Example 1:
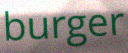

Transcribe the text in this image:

burger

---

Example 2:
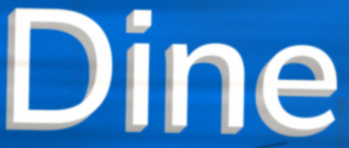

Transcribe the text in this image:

Dine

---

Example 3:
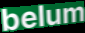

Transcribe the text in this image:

belum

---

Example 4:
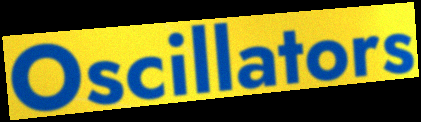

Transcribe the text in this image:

Oscillators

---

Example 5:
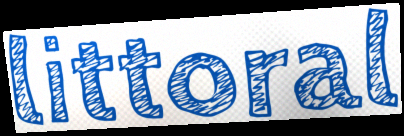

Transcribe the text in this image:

littoral